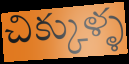
చిక్కుళ్ళ